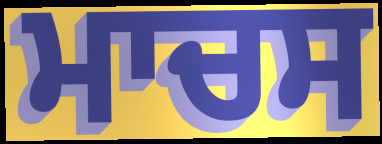
ਮਾਚਸ